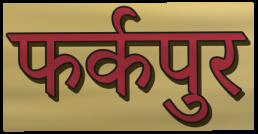
फर्कपुर